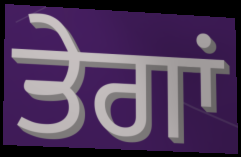
ਤੇਗਾਂ